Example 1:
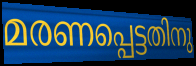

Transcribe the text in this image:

മരണപ്പെട്ടതിനു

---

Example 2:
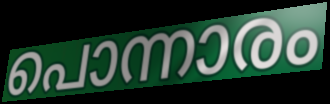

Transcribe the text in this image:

പൊന്നാരം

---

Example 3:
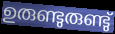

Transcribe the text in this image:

ഉരുണ്ടുരുണ്ടു്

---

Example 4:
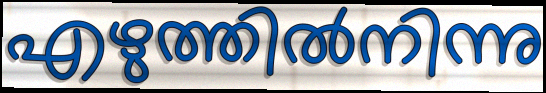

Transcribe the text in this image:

എഴുത്തിൽനിന്നു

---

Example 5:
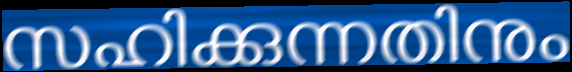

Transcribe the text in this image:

സഹിക്കുന്നതിനും